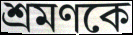
শ্রমণকে